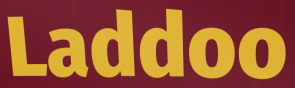
Laddoo